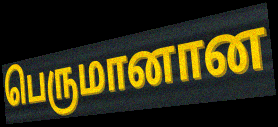
பெருமானான